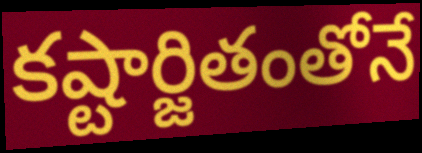
కష్టార్జితంతోనే